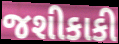
જશીકાકી